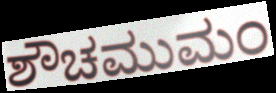
ಶೌಚಮುಮಂ